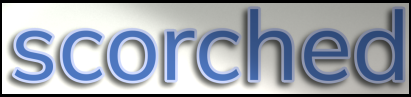
scorched